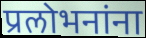
प्रलोभनांना